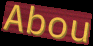
Abou